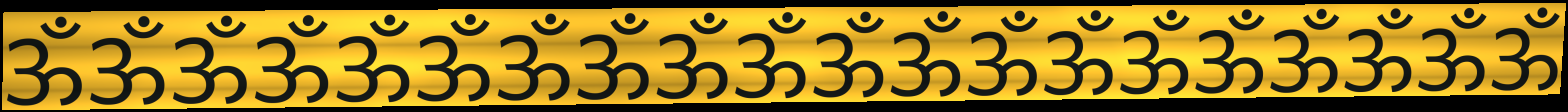
ॐॐॐॐॐॐॐॐॐॐॐॐॐॐॐॐॐॐॐॐ